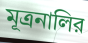
মূত্রনালির